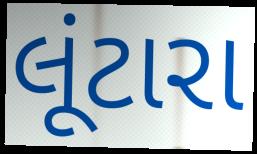
લૂંટારા